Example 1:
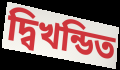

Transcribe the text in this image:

দ্বিখন্ডিত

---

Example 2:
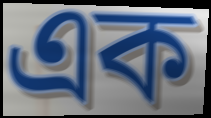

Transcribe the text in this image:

এক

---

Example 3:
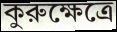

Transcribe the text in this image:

কুরুক্ষেত্রে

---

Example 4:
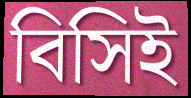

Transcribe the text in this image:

বিসিই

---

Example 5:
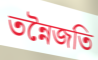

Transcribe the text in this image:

তন্নৈজতি